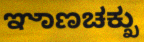
ಞಾಣಚಕ್ಖು